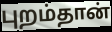
புறம்தான்